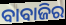
ବାବାଜିର